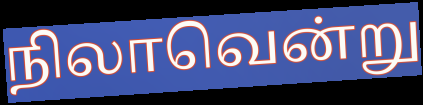
நிலாவென்று